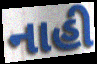
નાહી